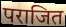
पराजित